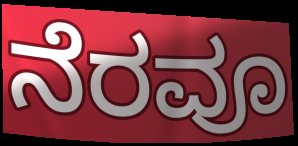
ನೆರವೂ